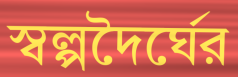
স্বল্পদৈর্ঘের